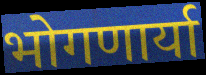
भोगणार्या